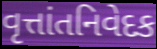
વૃત્તાંતનિવેદક